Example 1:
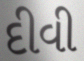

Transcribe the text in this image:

દીવી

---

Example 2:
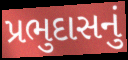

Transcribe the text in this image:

પ્રભુદાસનું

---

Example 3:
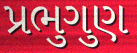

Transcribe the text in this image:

પ્રભુગુણ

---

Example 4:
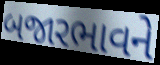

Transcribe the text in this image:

બજારભાવને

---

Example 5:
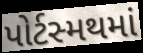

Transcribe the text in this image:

પોર્ટસ્મથમાં